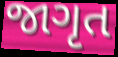
જાગૃત